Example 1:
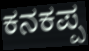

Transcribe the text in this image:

ಕನಕಪ್ಪ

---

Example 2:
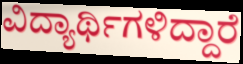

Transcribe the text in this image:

ವಿದ್ಯಾರ್ಥಿಗಳಿದ್ದಾರೆ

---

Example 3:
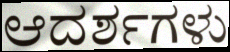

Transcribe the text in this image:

ಆದರ್ಶಗಳು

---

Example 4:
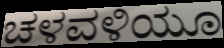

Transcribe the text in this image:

ಚಳವಳಿಯೂ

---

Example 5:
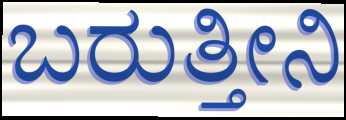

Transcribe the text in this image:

ಬರುತ್ತೀನಿ